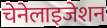
चेनेलाइजेशन